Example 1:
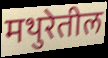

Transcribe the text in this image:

मथुरेतील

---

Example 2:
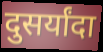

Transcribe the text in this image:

दुसर्यांदा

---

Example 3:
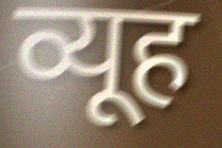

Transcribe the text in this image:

व्यूह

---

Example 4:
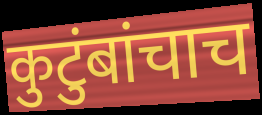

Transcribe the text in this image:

कुटुंबांचाच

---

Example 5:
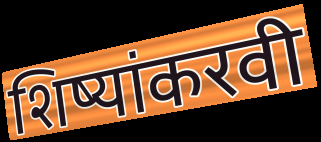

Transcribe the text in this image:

शिष्यांकरवी